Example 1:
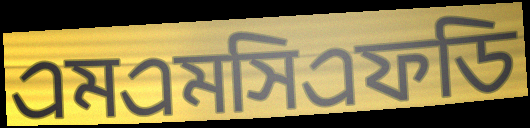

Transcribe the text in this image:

এমএমসিএফডি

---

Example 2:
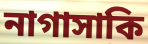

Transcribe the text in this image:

নাগাসাকি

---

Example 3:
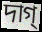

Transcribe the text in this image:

দাগ্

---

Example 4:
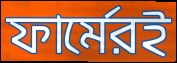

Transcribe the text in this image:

ফার্মেরই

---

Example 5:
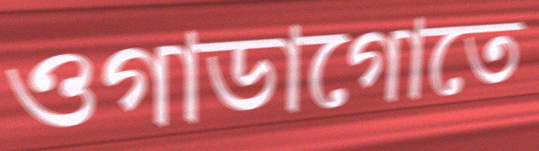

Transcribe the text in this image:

ওগাডাগোতে